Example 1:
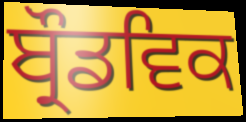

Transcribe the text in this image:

ਬ੍ਰੌਡਵਿਕ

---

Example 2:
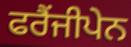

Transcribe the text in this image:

ਫਰੈਂਜੀਪੇਨ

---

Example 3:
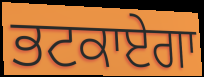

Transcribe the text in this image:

ਭਟਕਾਏਗਾ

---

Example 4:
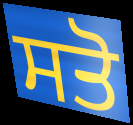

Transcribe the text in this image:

ਸਤੋ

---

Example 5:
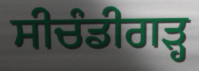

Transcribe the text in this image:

ਸੀਚੰਡੀਗੜ੍ਹ